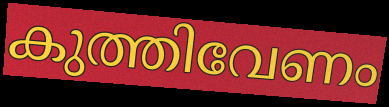
കുത്തിവേണം